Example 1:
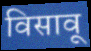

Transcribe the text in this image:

विसावू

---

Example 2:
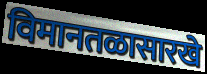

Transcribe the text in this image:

विमानतळासारखे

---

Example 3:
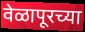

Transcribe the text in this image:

वेळापूरच्या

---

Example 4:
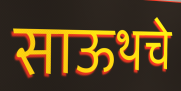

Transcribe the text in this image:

साऊथचे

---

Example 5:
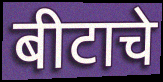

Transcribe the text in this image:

बीटाचे